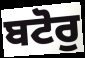
ਬਟੋਰੁ